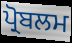
ਪ੍ਰੋਬਲਮ